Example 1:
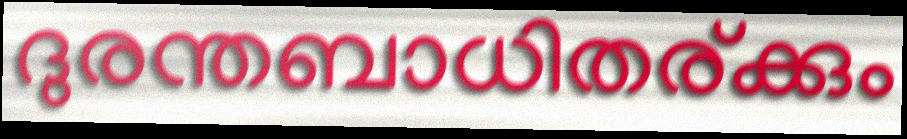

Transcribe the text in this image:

ദുരന്തബാധിതര്ക്കും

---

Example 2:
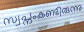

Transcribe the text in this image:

സ്വപ്നംകണ്ടിരുന്നു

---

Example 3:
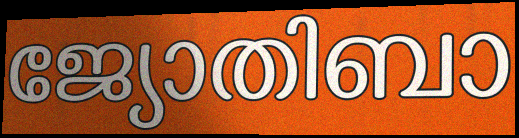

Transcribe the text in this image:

ജ്യോതിബാ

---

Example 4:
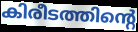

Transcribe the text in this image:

കിരീടത്തിന്റെ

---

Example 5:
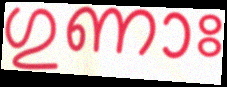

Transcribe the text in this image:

ഗുണാഃ